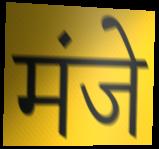
मंजे